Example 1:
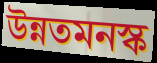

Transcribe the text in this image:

উন্নতমনস্ক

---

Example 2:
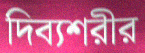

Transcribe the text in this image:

দিব্যশরীর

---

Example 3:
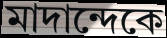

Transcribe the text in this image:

মাদান্দেকে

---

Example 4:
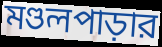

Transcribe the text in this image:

মণ্ডলপাড়ার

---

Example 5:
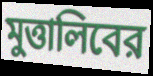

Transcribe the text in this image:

মুত্তালিবের